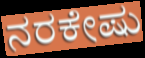
ನರಕೇಷು